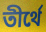
তীর্থে